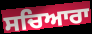
ਸਚਿਆਰਾ